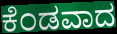
ಕೆಂಡವಾದ